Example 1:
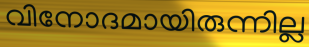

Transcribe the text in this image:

വിനോദമായിരുന്നില്ല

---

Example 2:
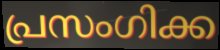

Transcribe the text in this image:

പ്രസംഗിക്ക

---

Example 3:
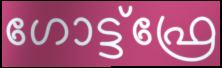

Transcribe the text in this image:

ഗോട്ട്ഫ്രേ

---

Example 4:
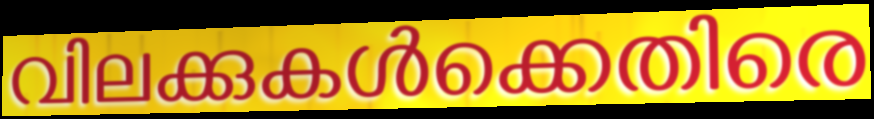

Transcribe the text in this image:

വിലക്കുകൾക്കെതിരെ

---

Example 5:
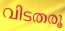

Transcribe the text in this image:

വിടതരൂ